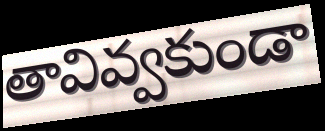
తావివ్వకుండా